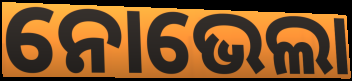
ନୋଭେଲା